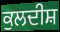
ਕੁਲਦੀਸ਼